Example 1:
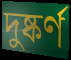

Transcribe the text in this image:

দুষ্কর্ণ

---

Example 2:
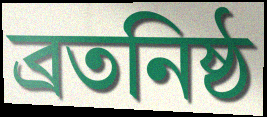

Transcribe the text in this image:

ব্রতনিষ্ঠ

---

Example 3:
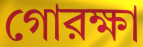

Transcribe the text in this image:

গোরক্ষা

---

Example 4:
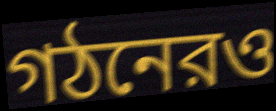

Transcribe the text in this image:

গঠনেরও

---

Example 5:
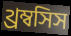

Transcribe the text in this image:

থ্রম্বসিস